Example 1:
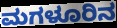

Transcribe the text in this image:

ಮಗಳೂರಿನ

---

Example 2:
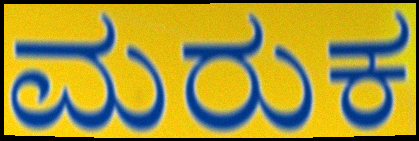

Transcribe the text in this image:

ಮರುಕ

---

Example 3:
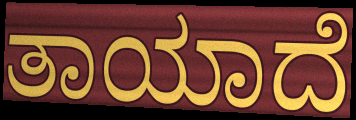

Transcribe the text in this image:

ತಾಯಾದೆ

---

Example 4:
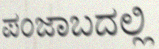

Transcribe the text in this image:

ಪಂಜಾಬದಲ್ಲಿ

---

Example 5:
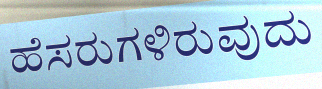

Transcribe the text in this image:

ಹೆಸರುಗಳಿರುವುದು